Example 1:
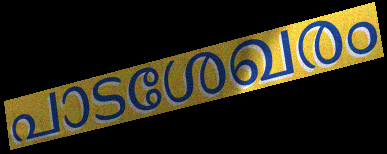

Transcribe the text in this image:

പാടശേഖരം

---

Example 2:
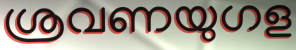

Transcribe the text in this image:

ശ്രവണയുഗള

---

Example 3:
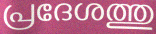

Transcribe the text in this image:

പ്രദേശത്തു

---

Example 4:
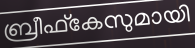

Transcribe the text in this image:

ബ്രീഫ്കേസുമായി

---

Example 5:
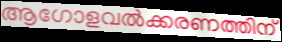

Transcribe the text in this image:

ആഗോളവൽക്കരണത്തിന്